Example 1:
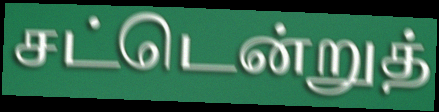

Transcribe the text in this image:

சட்டென்றுத்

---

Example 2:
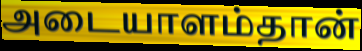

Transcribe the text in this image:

அடையாளம்தான்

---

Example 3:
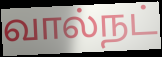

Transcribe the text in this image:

வால்நட்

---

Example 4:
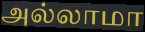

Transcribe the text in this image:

அல்லாமா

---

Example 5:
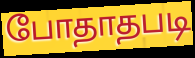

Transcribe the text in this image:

போதாதபடி